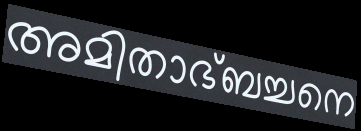
അമിതാഭ്ബച്ചനെ